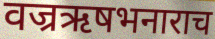
वज्रऋषभनाराच